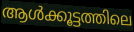
ആൾക്കൂട്ടത്തിലെ